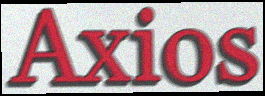
Axios